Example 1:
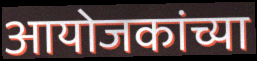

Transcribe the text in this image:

आयोजकांच्या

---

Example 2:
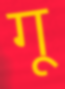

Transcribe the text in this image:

गू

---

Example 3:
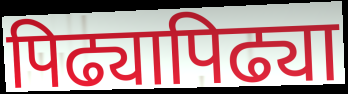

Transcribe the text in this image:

पिढ्यापिढ्या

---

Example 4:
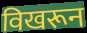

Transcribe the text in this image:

विखरून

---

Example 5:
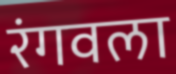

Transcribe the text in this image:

रंगवला